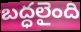
బద్ధలైంది